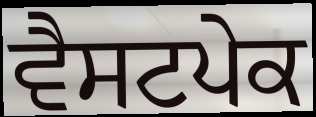
ਵੈਸਟਪੇਕ